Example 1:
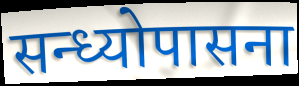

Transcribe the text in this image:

सन्ध्योपासना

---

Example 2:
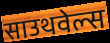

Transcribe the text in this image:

साउथवेल्स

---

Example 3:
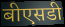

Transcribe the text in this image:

बीएसडी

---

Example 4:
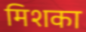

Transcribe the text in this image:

मिशका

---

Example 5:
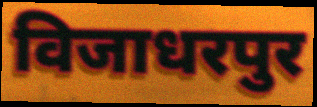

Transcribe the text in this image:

विजाधरपुर